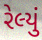
રેલ્યું